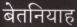
बेतनियाह